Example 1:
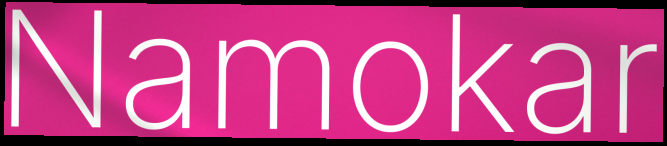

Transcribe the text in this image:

Namokar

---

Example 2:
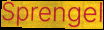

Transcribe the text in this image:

Sprengel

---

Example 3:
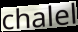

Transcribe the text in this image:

chalel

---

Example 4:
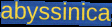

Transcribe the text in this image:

abyssinica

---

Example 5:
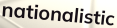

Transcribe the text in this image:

nationalistic